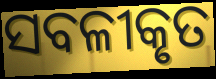
ସବଳୀକୃତ